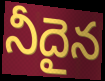
నీదైన